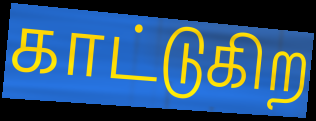
காட்டுகிற